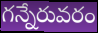
గన్నేరువరం